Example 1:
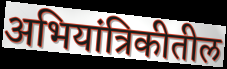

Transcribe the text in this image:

अभियांत्रिकीतील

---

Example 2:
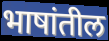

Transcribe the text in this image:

भाषांतील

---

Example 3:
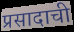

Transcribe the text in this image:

प्रसादाची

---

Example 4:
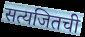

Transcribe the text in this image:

सत्यजितची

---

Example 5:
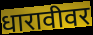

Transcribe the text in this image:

धारावीवर